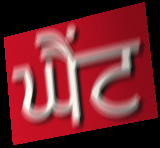
ਘੈਂਟ